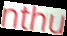
nthu